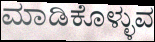
ಮಾಡಿಕೊಳ್ಳುವ